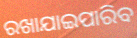
ରଖାଯାଇପାରିବ